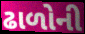
ઢાળોની